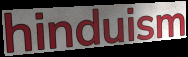
hinduism